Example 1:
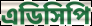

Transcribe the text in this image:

এডিসিপি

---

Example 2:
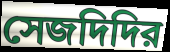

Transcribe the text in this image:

সেজদিদির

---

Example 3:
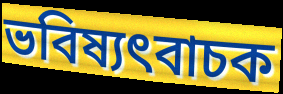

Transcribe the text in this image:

ভবিষ্যৎবাচক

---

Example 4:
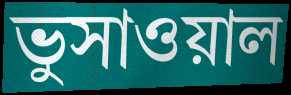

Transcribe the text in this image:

ভুসাওয়াল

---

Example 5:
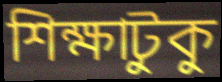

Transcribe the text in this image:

শিক্ষাটুকু